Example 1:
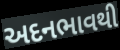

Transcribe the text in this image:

અદનભાવથી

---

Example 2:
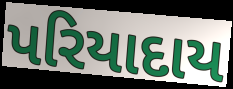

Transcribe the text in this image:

પરિયાદાય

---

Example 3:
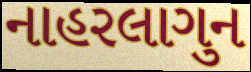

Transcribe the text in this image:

નાહરલાગુન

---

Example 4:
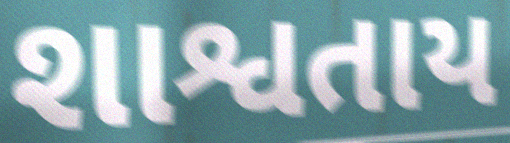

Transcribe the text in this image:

શાશ્વતાય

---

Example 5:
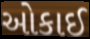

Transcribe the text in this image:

ઓકાઈ